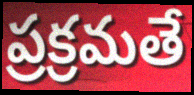
ప్రక్రమతే